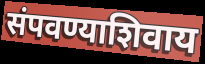
संपवण्याशिवाय